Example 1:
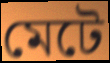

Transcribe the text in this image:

মেটে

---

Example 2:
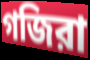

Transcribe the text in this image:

গজিরা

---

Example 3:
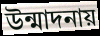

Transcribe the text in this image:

উন্মাদনায়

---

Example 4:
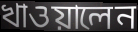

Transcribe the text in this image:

খাওয়ালেন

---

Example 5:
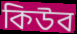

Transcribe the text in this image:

কিউব